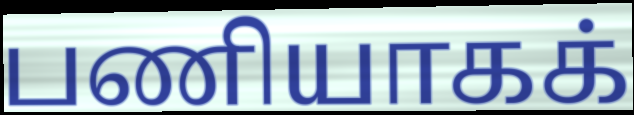
பணியாகக்